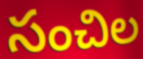
సంచిల